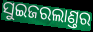
ସୁଇଜରଲାଣ୍ତର